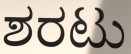
ಶರಟು